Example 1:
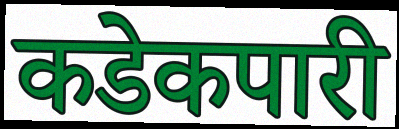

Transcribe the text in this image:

कडेकपारी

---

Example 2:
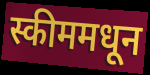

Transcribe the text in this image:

स्कीममधून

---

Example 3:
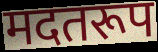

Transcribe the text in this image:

मदतरूप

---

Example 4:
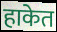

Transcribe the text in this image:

हाकेत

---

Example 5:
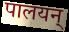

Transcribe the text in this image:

पालयन्